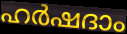
ഹർഷദാം